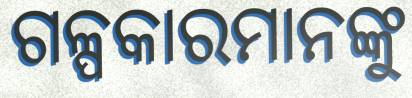
ଗଳ୍ପକାରମାନଙ୍କୁ